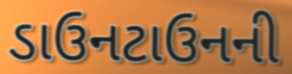
ડાઉનટાઉનની